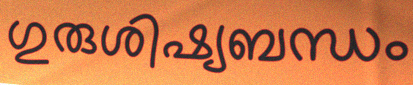
ഗുരുശിഷ്യബന്ധം